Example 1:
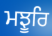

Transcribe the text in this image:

ਮਝੂਰਿ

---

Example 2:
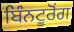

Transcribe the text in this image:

ਬਿੰਨਟੂਰੋਂਗ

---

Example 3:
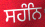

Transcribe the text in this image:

ਸਹੰਨਿ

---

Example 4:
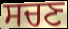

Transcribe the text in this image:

ਸਚਣ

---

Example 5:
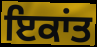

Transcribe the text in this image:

ਇਕਾਂਤ